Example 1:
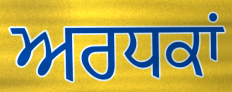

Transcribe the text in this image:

ਅਰਧਕਾਂ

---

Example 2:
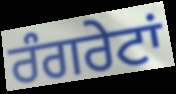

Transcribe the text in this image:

ਰੰਗਰੇਟਾਂ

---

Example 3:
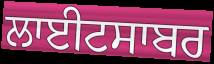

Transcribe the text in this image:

ਲਾਈਟਸਾਬਰ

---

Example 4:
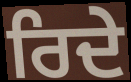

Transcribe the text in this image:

ਰਿਦੇ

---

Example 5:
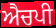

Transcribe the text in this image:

ਐਚਪੀ